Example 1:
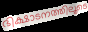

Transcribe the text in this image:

ഭിക്ഷാടനത്തിലൂടെ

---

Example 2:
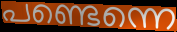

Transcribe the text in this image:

പണ്ടെന്നെ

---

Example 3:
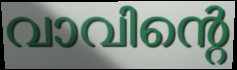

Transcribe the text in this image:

വാവിന്റെ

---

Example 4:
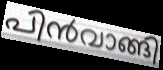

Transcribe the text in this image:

പിൻവാങ്ങി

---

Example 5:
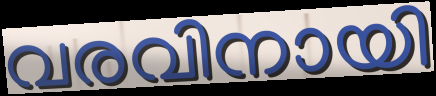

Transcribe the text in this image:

വരവിനായി